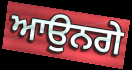
ਆਉਨਗੇ